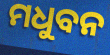
ମଧୁବନ